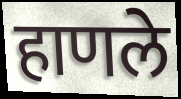
हाणले